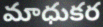
మాధుకర